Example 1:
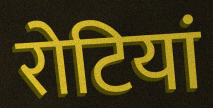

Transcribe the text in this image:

रोटियां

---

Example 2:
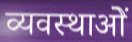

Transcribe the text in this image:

व्यवस्थाओें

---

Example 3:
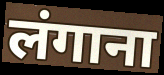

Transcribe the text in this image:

लंगाना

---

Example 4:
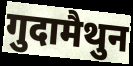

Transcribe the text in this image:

गुदामैथुन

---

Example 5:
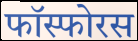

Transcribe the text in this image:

फॉस्फोरस